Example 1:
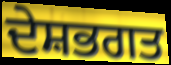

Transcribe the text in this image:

ਦੇਸ਼ਭਗਤ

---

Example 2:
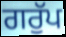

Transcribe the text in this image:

ਗਰੁੱਪ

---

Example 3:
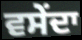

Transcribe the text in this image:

ਵਸੇਂਦਾ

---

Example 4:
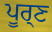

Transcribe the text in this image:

ਪੂਰ੍ਣ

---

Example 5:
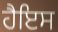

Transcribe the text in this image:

ਹੈਇਸ